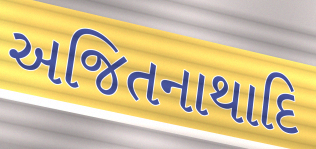
અજિતનાથાદિ